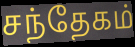
சந்தேகம்